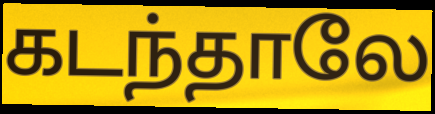
கடந்தாலே